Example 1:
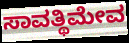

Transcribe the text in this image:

ಸಾವತ್ಥಿಮೇವ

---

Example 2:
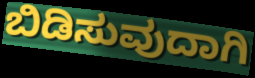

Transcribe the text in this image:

ಬಿಡಿಸುವುದಾಗಿ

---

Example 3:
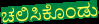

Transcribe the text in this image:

ಚಲಿಸಿಕೊಂಡು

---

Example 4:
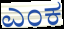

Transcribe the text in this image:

ಎಂಕ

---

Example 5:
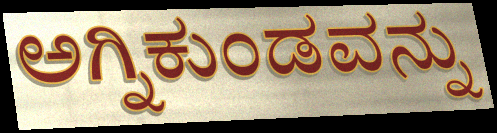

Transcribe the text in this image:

ಅಗ್ನಿಕುಂಡವನ್ನು